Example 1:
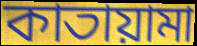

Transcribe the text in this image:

কাতায়ামা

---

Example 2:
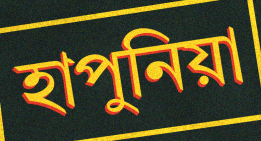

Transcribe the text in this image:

হাপুনিয়া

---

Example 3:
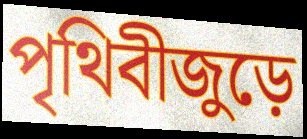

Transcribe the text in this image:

পৃথিবীজুড়ে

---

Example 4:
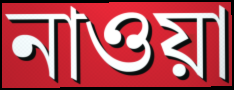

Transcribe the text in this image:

নাওয়া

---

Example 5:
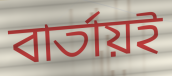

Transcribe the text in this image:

বার্তায়ই